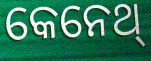
କେନେଥ୍